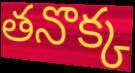
తనొక్క